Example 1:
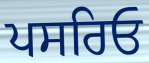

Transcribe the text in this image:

ਪਸਰਿਓ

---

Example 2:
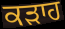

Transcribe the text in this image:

ਕੜਾਹ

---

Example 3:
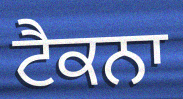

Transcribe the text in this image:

ਟੈਕਨਾ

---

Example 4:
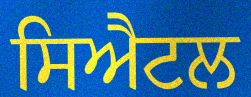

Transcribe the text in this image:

ਸਿਐਟਲ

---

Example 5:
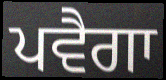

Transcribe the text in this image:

ਪਵੈਗਾ